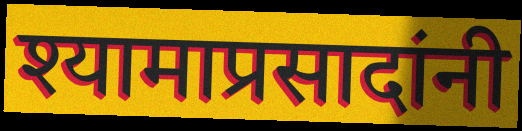
श्यामाप्रसादांनी